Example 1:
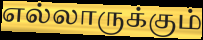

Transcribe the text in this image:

எல்லாருக்கும்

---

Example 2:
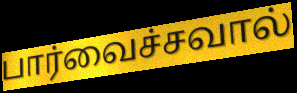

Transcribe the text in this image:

பார்வைச்சவால்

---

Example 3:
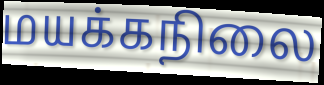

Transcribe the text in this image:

மயக்கநிலை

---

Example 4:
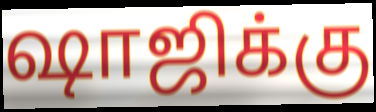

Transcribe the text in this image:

ஷாஜிக்கு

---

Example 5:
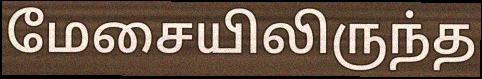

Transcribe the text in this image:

மேசையிலிருந்த